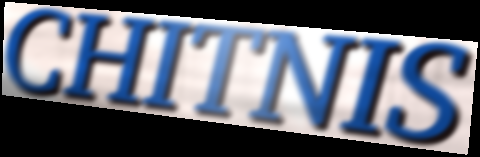
CHITNIS